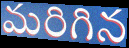
మరిగిన